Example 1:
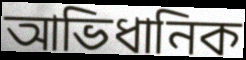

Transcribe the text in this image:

আভিধানিক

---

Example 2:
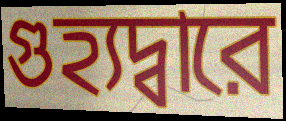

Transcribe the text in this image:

গুহ্যদ্বারে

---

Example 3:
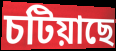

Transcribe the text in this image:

চটিয়াছে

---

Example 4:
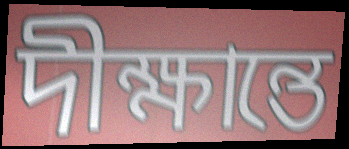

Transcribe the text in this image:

দীক্ষান্তে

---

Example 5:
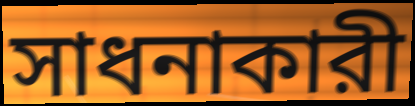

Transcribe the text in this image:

সাধনাকারী